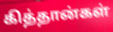
கித்தான்கள்